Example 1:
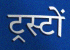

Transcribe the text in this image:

ट्रस्टों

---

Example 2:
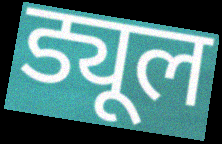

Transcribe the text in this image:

ड्यूल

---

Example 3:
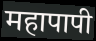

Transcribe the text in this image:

महापापी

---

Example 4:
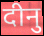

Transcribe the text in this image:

दीनु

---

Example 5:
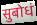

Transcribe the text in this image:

सुबोधं